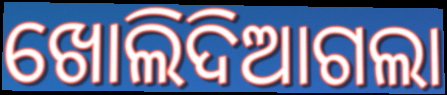
ଖୋଲିଦିଆଗଲା